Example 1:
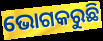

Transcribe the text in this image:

ଭୋଗକରୁଛି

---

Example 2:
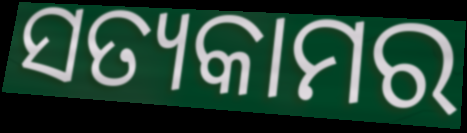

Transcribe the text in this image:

ସତ୍ୟକାମର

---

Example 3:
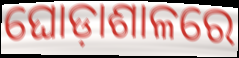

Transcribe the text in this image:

ଘୋଡ଼ାଶାଳରେ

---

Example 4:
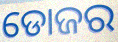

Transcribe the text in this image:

ଡୋଜର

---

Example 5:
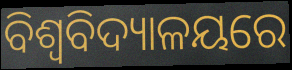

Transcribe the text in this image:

ବିଶ୍ବବିଦ୍ୟାଳୟରେ